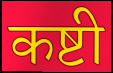
कष्टी